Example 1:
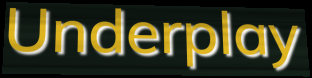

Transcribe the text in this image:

Underplay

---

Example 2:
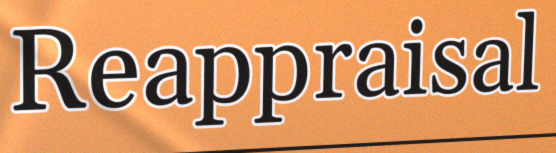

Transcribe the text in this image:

Reappraisal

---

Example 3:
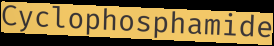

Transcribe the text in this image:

Cyclophosphamide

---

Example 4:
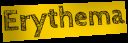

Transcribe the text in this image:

Erythema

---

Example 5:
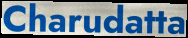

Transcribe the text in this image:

Charudatta